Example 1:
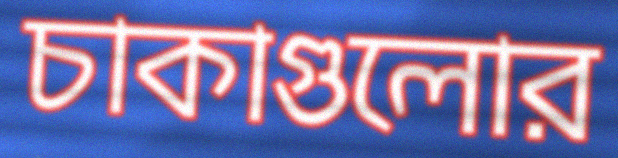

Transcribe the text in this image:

চাকাগুলোর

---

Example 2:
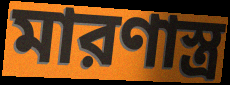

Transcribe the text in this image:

মারণাস্ত্র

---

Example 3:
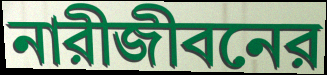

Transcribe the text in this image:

নারীজীবনের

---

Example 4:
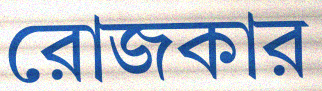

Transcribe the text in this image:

রোজকার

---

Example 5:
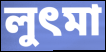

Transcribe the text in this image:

লুৎমা